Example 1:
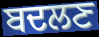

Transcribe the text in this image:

ਬਦਲਣ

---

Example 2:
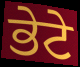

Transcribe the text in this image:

ਭੇਟੇ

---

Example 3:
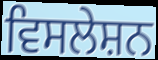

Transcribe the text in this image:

ਵਿਸਲੇਸ਼ਨ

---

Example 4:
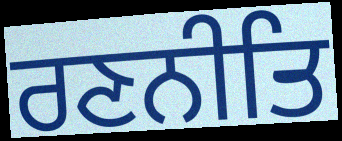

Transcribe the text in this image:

ਰਣਨੀਤਿ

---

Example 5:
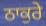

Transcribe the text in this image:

ਠਾਕੁਰੇ